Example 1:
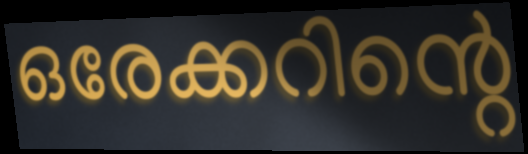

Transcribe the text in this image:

ഒരേക്കറിന്റെ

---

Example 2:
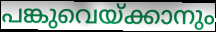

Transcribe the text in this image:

പങ്കുവെയ്ക്കാനും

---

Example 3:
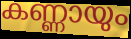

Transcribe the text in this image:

കണ്ണായും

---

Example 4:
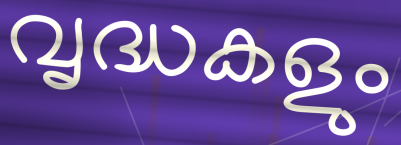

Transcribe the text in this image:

വൃദ്ധകളും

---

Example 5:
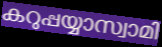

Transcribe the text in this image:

കറുപ്പയ്യാസ്വാമി